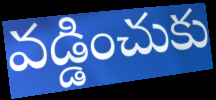
వడ్డించుకు